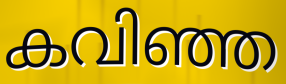
കവിഞ്ഞ